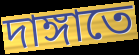
দাঙ্গাতে